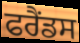
ਫਰੈਂਡਸ